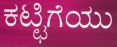
ಕಟ್ಟಿಗೆಯು